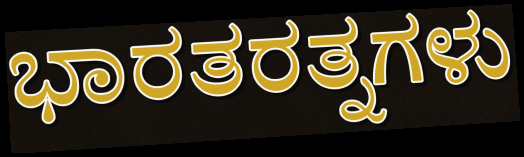
ಭಾರತರತ್ನಗಳು